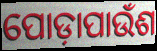
ପୋଡ଼ାପାଉଁଶ